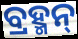
ବ୍ରହ୍ମନ୍